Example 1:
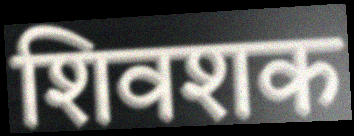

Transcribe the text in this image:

शिवशक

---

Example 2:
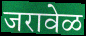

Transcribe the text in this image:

जरावेळ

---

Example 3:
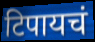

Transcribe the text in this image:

टिपायचं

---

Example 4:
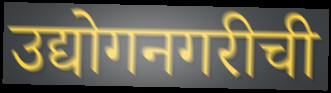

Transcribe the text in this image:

उद्योगनगरीची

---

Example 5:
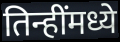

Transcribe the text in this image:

तिन्हींमध्ये